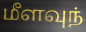
மீளவுந்